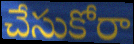
చేసుకోరా